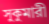
সুকুমারী